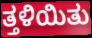
ತ್ತಳಿಯಿತು